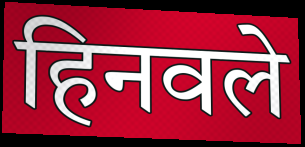
हिनवले